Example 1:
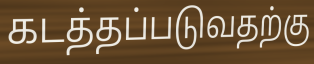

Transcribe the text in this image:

கடத்தப்படுவதற்கு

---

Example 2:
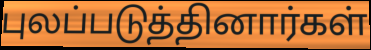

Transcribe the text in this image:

புலப்படுத்தினார்கள்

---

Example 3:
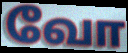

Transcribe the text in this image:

வோ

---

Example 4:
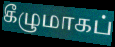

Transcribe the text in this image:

கீழுமாகப்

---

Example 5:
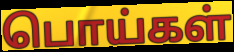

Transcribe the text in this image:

பொய்கள்